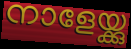
നാളേയ്ക്കു